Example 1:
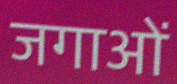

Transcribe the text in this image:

जगाओं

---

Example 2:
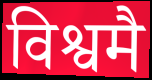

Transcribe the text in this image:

विश्वमै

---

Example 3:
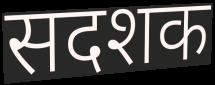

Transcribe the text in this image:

सदशक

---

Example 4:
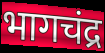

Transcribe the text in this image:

भागचंद्र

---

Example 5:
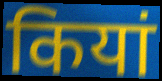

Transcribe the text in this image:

कियां